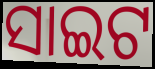
ସାଇଟ